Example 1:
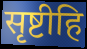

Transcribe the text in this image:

सृष्टीहि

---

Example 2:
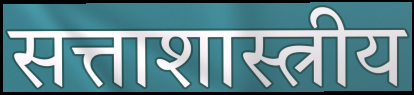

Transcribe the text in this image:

सत्ताशास्त्रीय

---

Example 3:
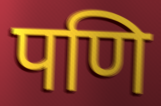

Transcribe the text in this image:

पणि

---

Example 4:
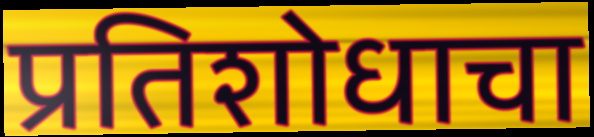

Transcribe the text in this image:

प्रतिशोधाचा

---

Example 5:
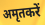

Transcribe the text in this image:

अमृतकरें